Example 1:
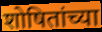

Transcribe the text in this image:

शोषितांच्या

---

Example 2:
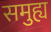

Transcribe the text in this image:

समुह्य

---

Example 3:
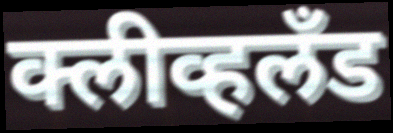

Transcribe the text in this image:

क्लीव्हलँड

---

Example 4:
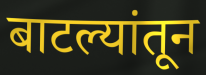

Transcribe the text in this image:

बाटल्यांतून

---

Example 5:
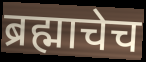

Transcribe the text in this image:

ब्रह्माचेच